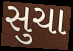
સુચા